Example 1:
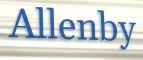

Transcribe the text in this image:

Allenby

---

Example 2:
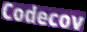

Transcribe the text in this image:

Codecov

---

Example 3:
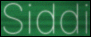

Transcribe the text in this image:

Siddi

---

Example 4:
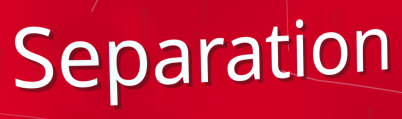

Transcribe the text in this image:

Separation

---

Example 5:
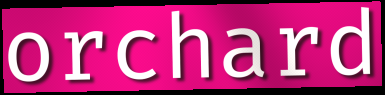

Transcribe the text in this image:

orchard